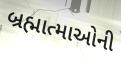
બ્રહ્માત્માઓની